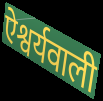
ऐश्वर्यवाली